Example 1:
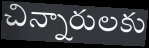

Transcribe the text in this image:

చిన్నారులకు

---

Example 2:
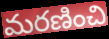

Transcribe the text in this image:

మరణించి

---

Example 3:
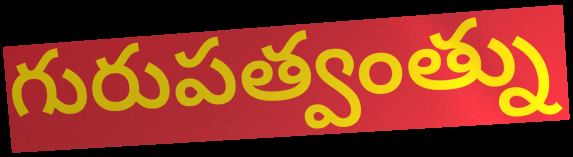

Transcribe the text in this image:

గురుపత్వంత్ను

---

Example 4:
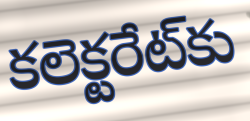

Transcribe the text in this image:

కలెక్టరేట్‌కు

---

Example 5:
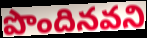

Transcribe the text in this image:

పొందినవని